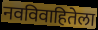
नवविवाहितेला